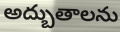
అద్బుతాలను